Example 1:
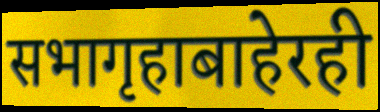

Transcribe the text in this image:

सभागृहाबाहेरही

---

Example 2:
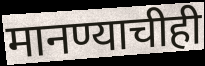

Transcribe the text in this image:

मानण्याचीही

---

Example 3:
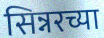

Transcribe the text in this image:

सिन्नरच्या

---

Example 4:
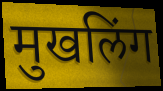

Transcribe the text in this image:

मुखलिंग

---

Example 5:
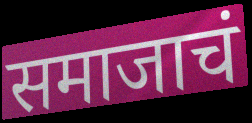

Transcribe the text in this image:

समाजाचं